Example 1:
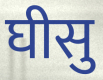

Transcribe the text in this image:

घीसु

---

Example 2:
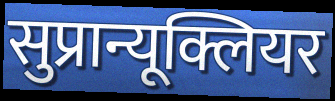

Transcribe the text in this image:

सुप्रान्यूक्लियर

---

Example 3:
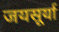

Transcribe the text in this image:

जयसूर्या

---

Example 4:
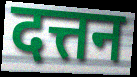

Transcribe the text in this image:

दत्तन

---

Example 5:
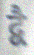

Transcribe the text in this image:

द्वै